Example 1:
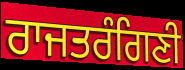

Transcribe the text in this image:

ਰਾਜਤਰੰਗਿਣੀ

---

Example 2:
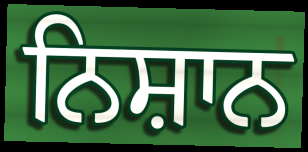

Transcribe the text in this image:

ਨਿਸ਼ਾਨ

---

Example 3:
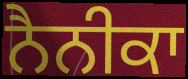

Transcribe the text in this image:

ਨੈਨੀਕਾ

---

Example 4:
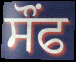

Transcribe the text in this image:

ਸੌਂਫ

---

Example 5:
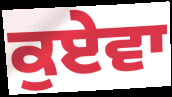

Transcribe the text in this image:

ਕੁਏਵਾ